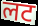
लट